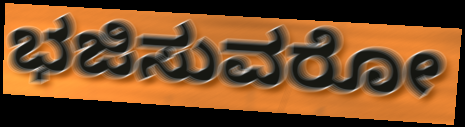
ಭಜಿಸುವರೋ